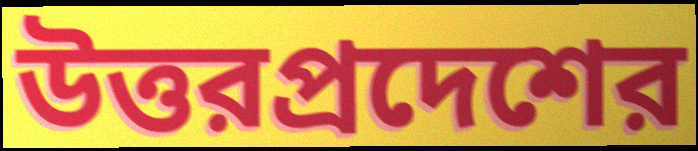
উত্তরপ্রদেশের